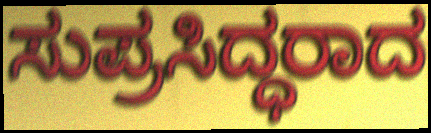
ಸುಪ್ರಸಿದ್ಧರಾದ